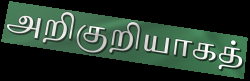
அறிகுறியாகத்